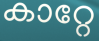
കാറ്റേ